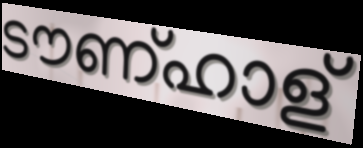
ടൗണ്ഹാള്